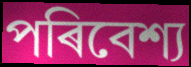
পৰিবেশ্য